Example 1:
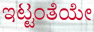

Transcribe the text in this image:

ಇಟ್ಟಂತೆಯೇ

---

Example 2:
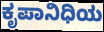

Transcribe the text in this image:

ಕೃಪಾನಿಧಿಯ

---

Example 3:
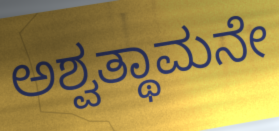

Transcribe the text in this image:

ಅಶ್ವತ್ಥಾಮನೇ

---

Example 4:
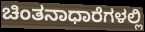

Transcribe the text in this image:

ಚಿಂತನಾಧಾರೆಗಳಲ್ಲಿ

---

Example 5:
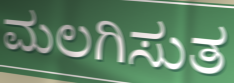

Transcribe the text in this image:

ಮಲಗಿಸುತ